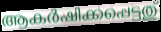
ആകർഷിക്കപ്പെട്ടതു്